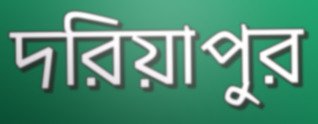
দরিয়াপুর